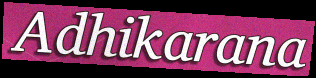
Adhikarana